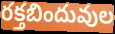
రక్తబిందువుల